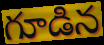
గూడిన